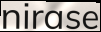
nirase